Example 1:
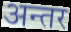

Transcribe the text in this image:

अन्तर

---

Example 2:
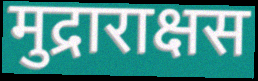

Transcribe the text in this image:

मुद्राराक्षस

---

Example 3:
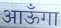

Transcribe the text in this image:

आऊँगा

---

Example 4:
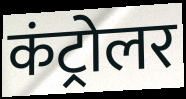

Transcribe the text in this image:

कंट्रोलर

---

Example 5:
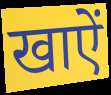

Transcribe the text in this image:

खाऐं